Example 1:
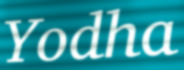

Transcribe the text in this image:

Yodha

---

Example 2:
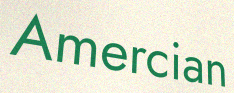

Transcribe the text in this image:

Amercian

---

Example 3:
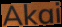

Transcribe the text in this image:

Akai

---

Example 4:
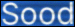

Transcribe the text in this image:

Sood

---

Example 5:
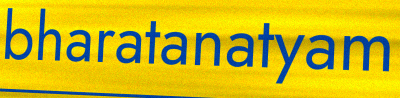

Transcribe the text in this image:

bharatanatyam